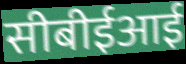
सीबीईआई